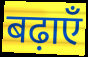
बढ़ाएँ